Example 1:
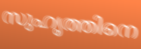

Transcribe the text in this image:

സുഹൃത്തിനെ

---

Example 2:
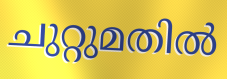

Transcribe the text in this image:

ചുറ്റുമതിൽ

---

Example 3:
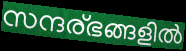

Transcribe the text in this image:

സന്ദര്ഭങ്ങളിൽ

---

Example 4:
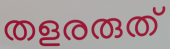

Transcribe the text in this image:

തളരരുത്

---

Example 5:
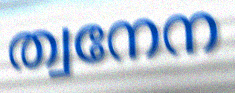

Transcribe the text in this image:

ത്വനേന